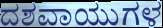
ದಶವಾಯುಗಳ